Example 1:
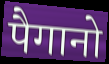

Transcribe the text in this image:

पैगानो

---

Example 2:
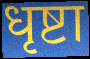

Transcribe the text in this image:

धृष्टा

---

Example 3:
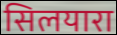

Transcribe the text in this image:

सिलयारा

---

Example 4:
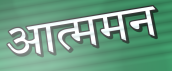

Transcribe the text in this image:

आत्ममन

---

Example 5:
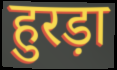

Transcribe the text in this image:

हुरड़ा